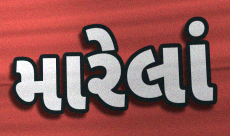
મારેલાં